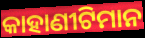
କାହାଣୀଟିମାନ